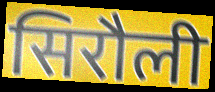
सिरौली